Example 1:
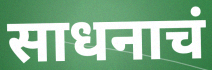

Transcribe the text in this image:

साधनाचं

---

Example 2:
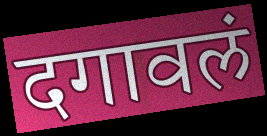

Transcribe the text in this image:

दगावलं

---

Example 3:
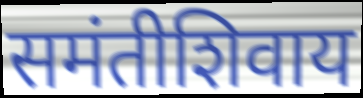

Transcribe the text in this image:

समंतीशिवाय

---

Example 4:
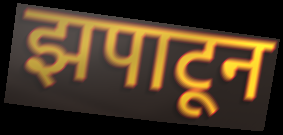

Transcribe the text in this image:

झपाटून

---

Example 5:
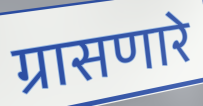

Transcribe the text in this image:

ग्रासणारे